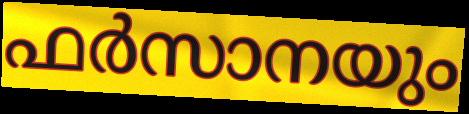
ഫർസാനയും